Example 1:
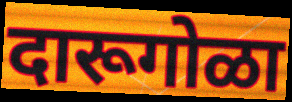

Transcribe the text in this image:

दारूगोळा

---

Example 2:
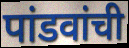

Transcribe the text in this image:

पांडवांची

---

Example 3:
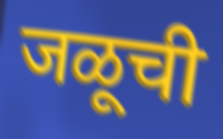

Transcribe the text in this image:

जळूची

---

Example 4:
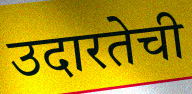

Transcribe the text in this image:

उदारतेची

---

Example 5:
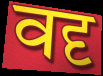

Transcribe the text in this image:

वदृ